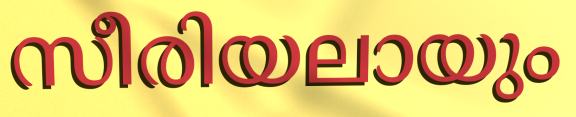
സീരിയലായും